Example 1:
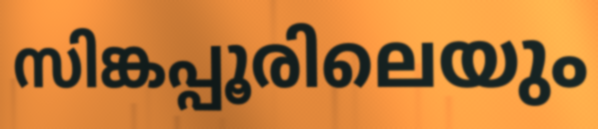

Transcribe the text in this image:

സിങ്കപ്പൂരിലെയും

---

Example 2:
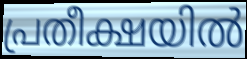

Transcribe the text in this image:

പ്രതീക്ഷയിൽ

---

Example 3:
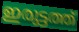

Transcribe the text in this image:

ഇരുട്ടത്ത്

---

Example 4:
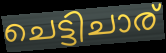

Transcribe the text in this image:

ചെട്ടിചാര്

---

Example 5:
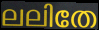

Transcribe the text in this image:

ലലിതേ